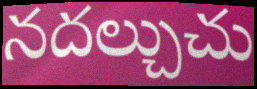
నదల్చుచు